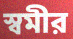
স্বমীর